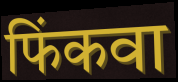
फिंकवा